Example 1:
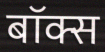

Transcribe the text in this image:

बॉक्स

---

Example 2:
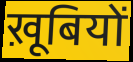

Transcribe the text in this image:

ख़ूबियों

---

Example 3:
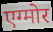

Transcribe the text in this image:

एग्मोर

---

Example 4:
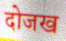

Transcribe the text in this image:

दोजख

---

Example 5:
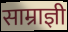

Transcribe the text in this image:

साम्राज्ञी